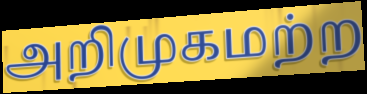
அறிமுகமற்ற